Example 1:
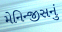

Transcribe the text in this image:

મેનિન્જીસનું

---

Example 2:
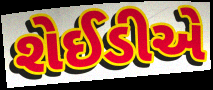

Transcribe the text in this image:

શેઈડીએ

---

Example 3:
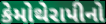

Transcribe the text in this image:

કેમોથેરાપીનો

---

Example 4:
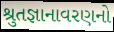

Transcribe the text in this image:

શ્રુતજ્ઞાનાવરણનો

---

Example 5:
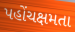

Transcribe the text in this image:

પહોંચક્ષમતા